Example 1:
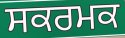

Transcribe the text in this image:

ਸਕਰਮਕ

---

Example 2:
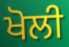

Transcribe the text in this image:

ਖੋਲੀ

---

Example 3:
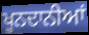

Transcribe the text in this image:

ਖੂਨਦਾਨੀਆਂ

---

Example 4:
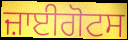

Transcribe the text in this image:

ਜ਼ਾਈਗੋਟਸ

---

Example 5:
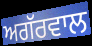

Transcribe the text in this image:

ਅਗੱਰਵਾਲ